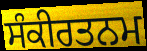
ਸੰਕੀਰਤਨਮ